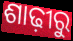
ଶାଢ଼ୀରୁ